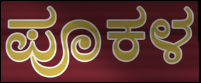
ಪೂಕಳ